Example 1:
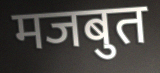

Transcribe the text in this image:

मजबुत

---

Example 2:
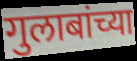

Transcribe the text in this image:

गुलाबांच्या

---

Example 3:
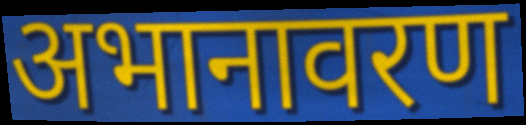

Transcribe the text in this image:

अभानावरण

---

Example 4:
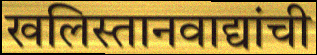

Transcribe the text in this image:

खलिस्तानवाद्यांची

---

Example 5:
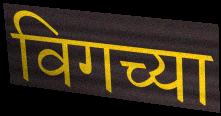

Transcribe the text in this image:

विगच्या